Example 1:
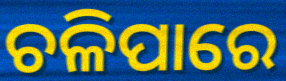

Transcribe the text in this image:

ଚଳିପାରେ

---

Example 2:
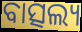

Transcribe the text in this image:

ବାତ୍ସଲ୍ଯ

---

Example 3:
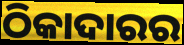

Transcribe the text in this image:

ଠିକାଦାରର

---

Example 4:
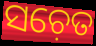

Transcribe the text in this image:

ସଚ଼େତ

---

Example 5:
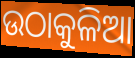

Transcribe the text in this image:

ଉଠାକୁଳିଆ